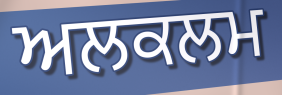
ਅਲਕਲਮ